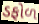
ડફોળ